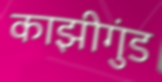
काझीगुंड